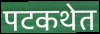
पटकथेत